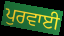
ਪੁਰਵਾਈ